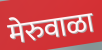
मेरुवाळा